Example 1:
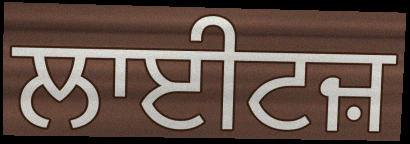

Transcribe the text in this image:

ਲਾਈਟਜ਼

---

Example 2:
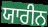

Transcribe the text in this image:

ਯਾਰੀਨ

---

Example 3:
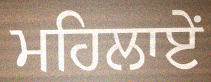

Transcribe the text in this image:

ਮਹਿਲਾਏਂ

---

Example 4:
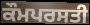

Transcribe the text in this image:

ਕੌਮਪਰਸਤੀ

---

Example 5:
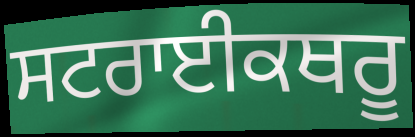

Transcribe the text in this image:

ਸਟਰਾਈਕਥਰੂ